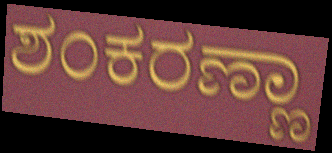
ಶಂಕರಣ್ಣಾ